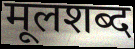
मूलशब्द